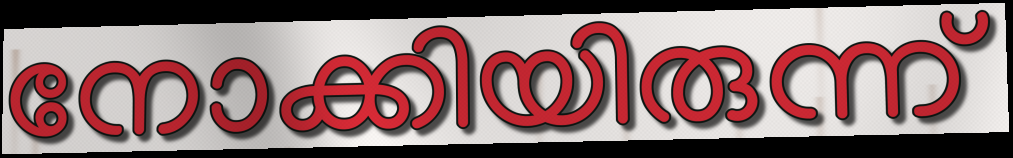
നോക്കിയിരുന്ന്